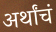
अर्थांचं